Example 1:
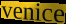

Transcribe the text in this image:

venice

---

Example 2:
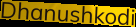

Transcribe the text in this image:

Dhanushkodi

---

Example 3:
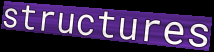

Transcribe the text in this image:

structures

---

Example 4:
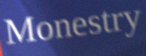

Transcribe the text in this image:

Monestry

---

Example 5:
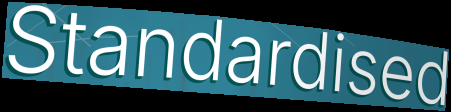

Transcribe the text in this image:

Standardised